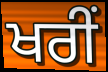
ਖਰੀਂ